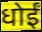
धोईं